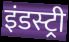
इंडस्‍ट्री